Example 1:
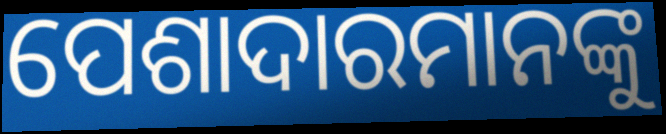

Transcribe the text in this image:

ପେଶାଦାରମାନଙ୍କୁ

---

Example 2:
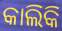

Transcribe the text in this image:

କାଲିକି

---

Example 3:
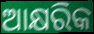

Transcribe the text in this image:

ଆକ୍ଷରିକ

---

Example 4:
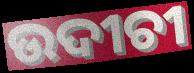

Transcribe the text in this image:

ଉଦୀଚୀ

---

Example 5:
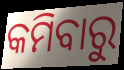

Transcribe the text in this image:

କମିବାରୁ